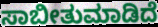
ಸಾಬೀತುಮಾಡಿದೆ